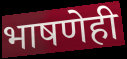
भाषणेही